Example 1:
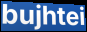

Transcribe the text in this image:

bujhtei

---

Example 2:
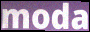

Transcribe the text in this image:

moda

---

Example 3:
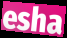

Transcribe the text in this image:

esha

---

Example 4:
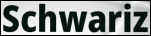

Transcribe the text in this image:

Schwariz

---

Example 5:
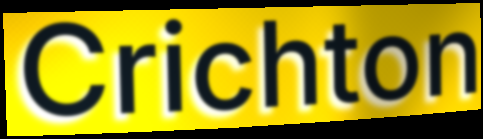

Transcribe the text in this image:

Crichton